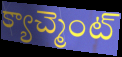
క్యాచ్మెంట్